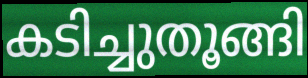
കടിച്ചുതൂങ്ങി